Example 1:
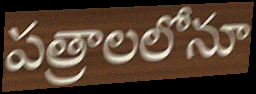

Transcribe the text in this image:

పత్రాలలోనూ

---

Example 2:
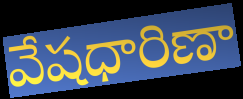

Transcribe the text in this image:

వేషధారిణా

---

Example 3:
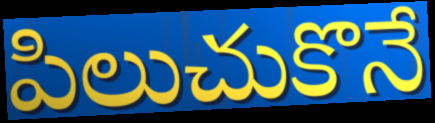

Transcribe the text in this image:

పిలుచుకొనే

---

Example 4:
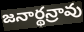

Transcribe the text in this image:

జనార్థన్రావు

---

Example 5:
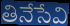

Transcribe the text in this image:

తినేసేవి